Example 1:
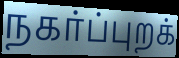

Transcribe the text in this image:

நகர்ப்புறக்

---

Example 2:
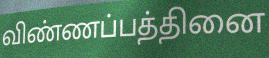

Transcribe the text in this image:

விண்ணப்பத்தினை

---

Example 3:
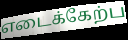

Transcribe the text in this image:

எடைக்கேற்ப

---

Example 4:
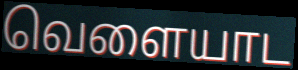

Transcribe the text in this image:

வெளையாட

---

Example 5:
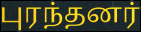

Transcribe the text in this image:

புரந்தனர்